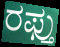
ರಫ್ತು